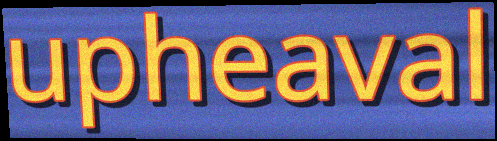
upheaval